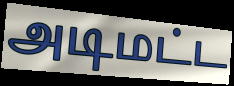
அடிமட்ட